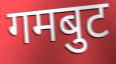
गमबुट